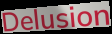
Delusion